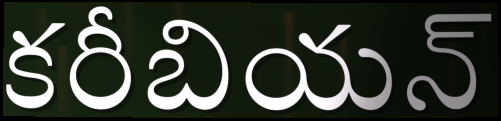
కరీబియన్